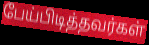
பேய்பிடித்தவர்கள்